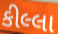
કીલ્લા